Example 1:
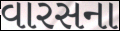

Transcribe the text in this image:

વારસના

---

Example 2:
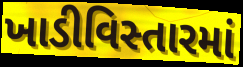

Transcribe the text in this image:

ખાડીવિસ્તારમાં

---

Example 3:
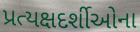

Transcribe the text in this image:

પ્રત્યક્ષદર્શીઓના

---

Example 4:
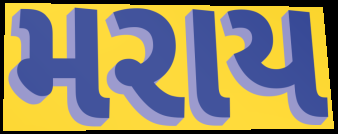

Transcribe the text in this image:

મરાય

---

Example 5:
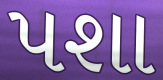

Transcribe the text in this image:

પશા